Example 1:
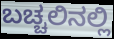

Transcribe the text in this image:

ಬಚ್ಚಲಿನಲ್ಲಿ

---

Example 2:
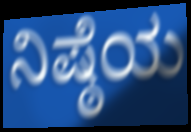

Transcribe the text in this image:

ನಿಷ್ಠೆಯ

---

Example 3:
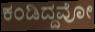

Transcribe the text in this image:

ಕಂಡಿದ್ದವೋ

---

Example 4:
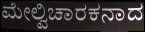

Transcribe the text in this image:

ಮೇಲ್ವಿಚಾರಕನಾದ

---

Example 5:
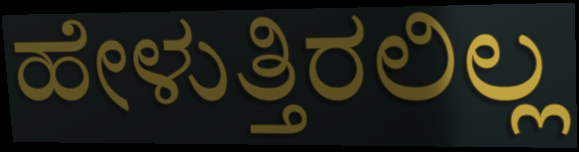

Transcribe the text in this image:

ಹೇಳುತ್ತಿರಲಿಲ್ಲ